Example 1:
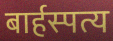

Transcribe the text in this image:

बार्हस्पत्य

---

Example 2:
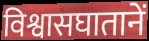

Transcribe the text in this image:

विश्वासघातानें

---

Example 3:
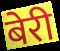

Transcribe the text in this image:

बेरी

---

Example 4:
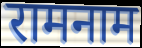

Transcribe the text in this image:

रामनाम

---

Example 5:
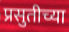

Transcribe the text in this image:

प्रसुतीच्या